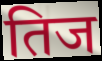
तिज